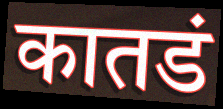
कातडं